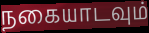
நகையாடவும்